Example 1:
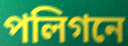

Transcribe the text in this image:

পলিগনে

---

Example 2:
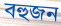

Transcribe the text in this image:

বহুজন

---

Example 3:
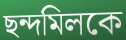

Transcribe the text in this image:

ছন্দমিলকে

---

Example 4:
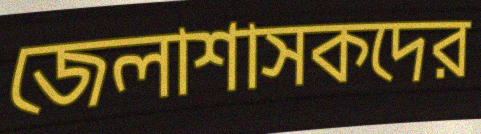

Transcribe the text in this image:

জেলাশাসকদের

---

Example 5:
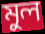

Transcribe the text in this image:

মুল